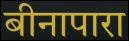
बीनापारा